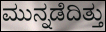
ಮುನ್ನಡೆದಿತ್ತು